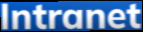
Intranet